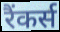
रैंकर्स